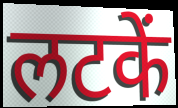
लटकें